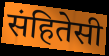
संहितेसी